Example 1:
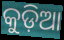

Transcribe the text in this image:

କୁଡ଼ିଆ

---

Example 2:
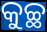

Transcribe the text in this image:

କୁଚ୍ଛ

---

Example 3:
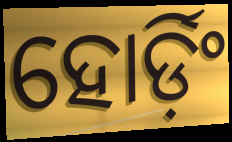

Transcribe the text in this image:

ହୋର୍ଡ଼ିଂ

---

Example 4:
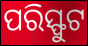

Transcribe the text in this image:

ପରିସ୍ଫୁଟ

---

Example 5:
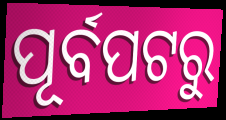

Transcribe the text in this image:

ପୂର୍ବପଟରୁ